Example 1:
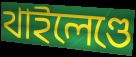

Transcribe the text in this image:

থাইলেণ্ডে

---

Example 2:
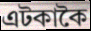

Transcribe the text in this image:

এটকাকৈ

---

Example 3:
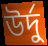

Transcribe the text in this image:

উৰ্দু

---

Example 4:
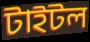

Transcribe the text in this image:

টাইটল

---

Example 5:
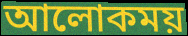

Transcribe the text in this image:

আলোকময়